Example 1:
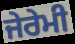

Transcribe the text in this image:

ਜੇਰੇਮੀ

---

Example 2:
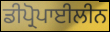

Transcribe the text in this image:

ਡੀਪ੍ਰੋਪਾਈਲੀਨ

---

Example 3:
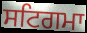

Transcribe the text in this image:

ਸਟਿਗਮਾ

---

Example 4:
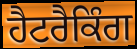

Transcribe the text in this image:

ਹੈਟਰੈਕਿੰਗ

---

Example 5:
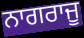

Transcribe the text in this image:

ਨਾਗਰਾਜੂ